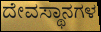
ದೇವಸ್ಥಾನಗಳ